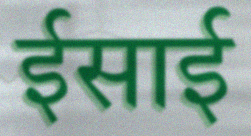
ईसाई